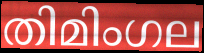
തിമിംഗല